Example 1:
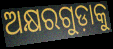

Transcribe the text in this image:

ଅକ୍ଷରଗୁଡ଼ାକୁ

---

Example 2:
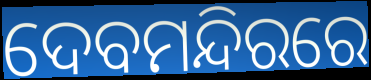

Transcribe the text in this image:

ଦେବମନ୍ଦିରରେ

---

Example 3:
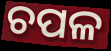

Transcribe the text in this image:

ଚପଳ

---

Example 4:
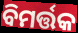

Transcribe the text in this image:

ବିମର୍ତ୍ତକ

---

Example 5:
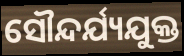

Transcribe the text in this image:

ସୌନ୍ଦର୍ଯ୍ୟଯୁକ୍ତ